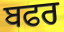
ਬਫਰ